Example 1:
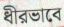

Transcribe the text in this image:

ধীরভাবে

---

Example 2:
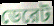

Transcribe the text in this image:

ডেরেট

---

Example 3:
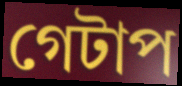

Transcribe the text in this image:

গেটাপ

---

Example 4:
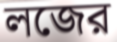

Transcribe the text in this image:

লজের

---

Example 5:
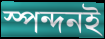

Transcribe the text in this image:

স্পন্দনই